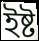
ইষ্ট